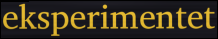
eksperimentet